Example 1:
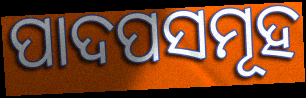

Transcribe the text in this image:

ପାଦପସମୂହ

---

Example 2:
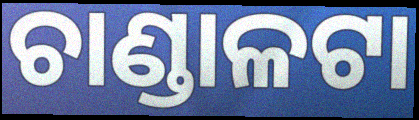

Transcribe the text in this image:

ଚାଣ୍ଡାଳଟା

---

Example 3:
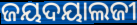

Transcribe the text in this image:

ଜୟଦୟାଲଜୀ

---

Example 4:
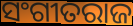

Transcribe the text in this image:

ସଂଗୀତରାଜ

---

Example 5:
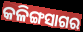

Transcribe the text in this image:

କଳିଙ୍ଗସାଗର